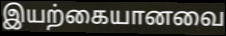
இயற்கையானவை